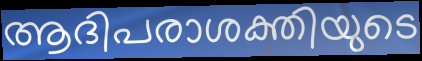
ആദിപരാശക്തിയുടെ